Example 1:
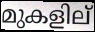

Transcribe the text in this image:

മുകളില്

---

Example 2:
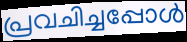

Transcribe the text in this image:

പ്രവചിച്ചപ്പോൾ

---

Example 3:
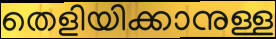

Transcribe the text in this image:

തെളിയിക്കാനുള്ള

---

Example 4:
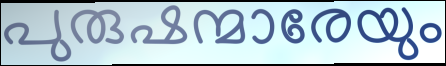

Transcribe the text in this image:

പുരുഷന്മാരേയും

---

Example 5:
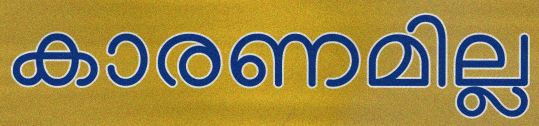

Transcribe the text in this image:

കാരണമില്ല